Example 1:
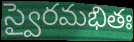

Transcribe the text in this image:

స్వైరమభితః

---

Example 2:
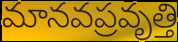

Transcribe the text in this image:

మానవప్రవృత్తి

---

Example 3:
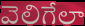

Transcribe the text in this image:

వెలిగేలా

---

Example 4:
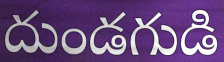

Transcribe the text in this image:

దుండగుడి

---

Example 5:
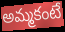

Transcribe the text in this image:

అమ్మకంటే